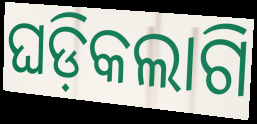
ଘଡ଼ିକଲାଗି